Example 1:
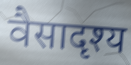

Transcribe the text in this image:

वैसादृश्य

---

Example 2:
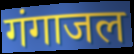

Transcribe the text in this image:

गंगाजल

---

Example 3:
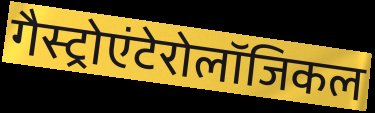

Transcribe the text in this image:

गैस्ट्रोएंटेरोलॉजिकल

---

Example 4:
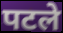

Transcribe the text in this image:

पटले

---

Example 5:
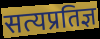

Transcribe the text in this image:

सत्यप्रतिज्ञ